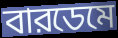
বারডেমে